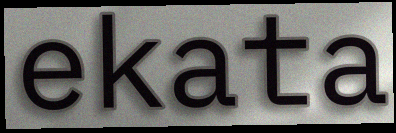
ekata